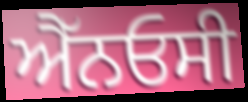
ਐੱਨਓਸੀ